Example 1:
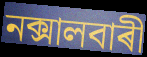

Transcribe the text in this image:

নক্সালবাৰী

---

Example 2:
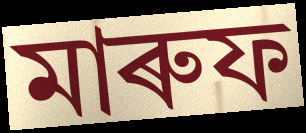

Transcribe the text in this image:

মাৰুফ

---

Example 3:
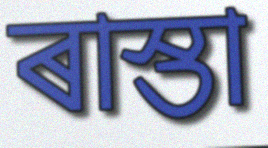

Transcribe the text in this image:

ৰাস্তা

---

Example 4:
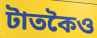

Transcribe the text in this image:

টাতকৈও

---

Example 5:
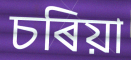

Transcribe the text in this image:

চৰিয়া